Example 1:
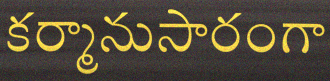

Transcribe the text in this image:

కర్మానుసారంగా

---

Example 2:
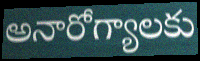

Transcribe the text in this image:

అనారోగ్యాలకు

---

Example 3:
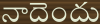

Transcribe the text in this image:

నాదెందు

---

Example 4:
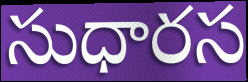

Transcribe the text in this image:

సుధారస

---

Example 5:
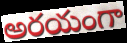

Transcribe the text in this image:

అరయంగా